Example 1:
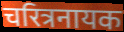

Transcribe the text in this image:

चरित्रनायक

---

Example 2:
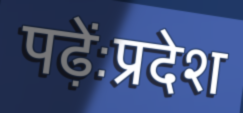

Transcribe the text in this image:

पढ़ेंःप्रदेश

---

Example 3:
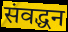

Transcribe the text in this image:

संवद्धन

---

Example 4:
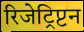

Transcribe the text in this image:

रिजेट्रिप्टन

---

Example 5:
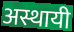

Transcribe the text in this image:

अस्थायी